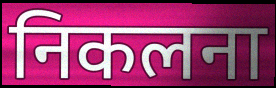
निकलना